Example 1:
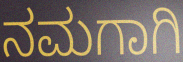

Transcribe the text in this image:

ನಮಗಾಗಿ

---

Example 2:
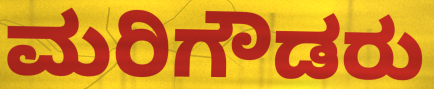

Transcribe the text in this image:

ಮರಿಗೌಡರು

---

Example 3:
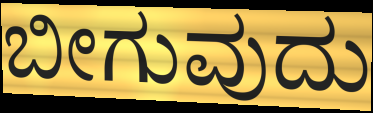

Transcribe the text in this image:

ಬೀಗುವುದು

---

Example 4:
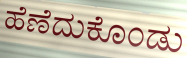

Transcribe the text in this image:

ಹೆಣೆದುಕೊಂಡು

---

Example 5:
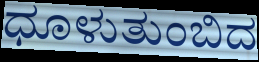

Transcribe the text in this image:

ಧೂಳುತುಂಬಿದ